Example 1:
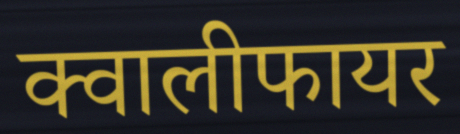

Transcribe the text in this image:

क्वालीफायर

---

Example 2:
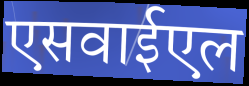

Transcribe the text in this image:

एसवाईएल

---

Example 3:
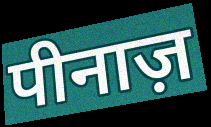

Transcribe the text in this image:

पीनाज़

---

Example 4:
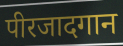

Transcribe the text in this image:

पीरजादगान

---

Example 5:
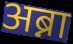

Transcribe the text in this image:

अब्ना